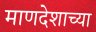
माणदेशाच्या